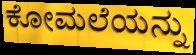
ಕೋಮಲೆಯನ್ನು